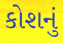
કોશનું